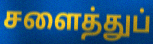
சளைத்துப்